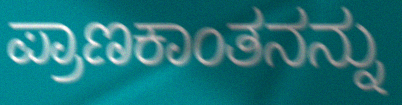
ಪ್ರಾಣಕಾಂತನನ್ನು